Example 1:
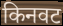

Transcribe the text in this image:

किनवट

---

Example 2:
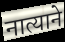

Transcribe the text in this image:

नात्याने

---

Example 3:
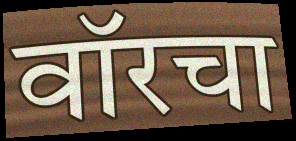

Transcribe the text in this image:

वॉरचा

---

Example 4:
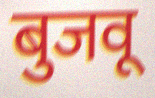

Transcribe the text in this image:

बुजवू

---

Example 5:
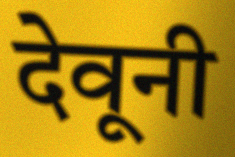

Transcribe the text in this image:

देवूनी